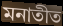
মনাতীত